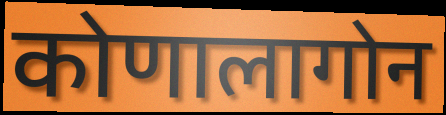
कोणालागोन